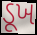
ડૂખ